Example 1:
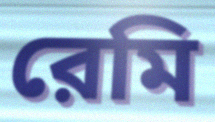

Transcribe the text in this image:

রেমি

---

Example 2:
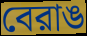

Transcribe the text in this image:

বেরাঙ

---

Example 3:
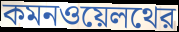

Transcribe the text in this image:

কমনওয়েলথের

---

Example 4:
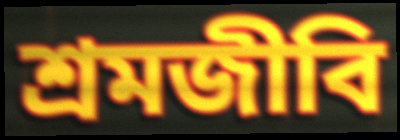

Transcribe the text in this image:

শ্রমজীবি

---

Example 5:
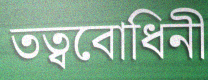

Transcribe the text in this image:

তত্ববোধিনী